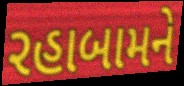
રહાબામને